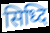
सिध्दि